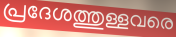
പ്രദേശത്തുള്ളവരെ